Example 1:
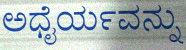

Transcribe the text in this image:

ಅಧೈರ್ಯವನ್ನು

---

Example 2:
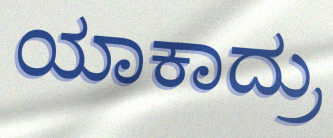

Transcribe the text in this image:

ಯಾಕಾದ್ರು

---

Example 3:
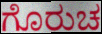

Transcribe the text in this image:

ಗೊರುಚ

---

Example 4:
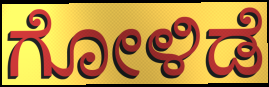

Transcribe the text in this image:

ಗೋಳಿಡೆ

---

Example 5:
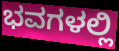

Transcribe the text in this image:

ಭವಗಳಲ್ಲಿ